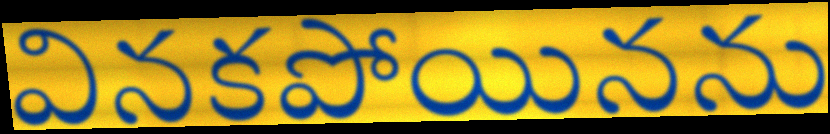
వినకపోయినను